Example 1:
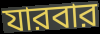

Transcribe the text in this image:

যারবার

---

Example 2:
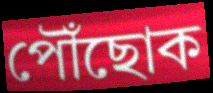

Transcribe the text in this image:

পৌঁছোক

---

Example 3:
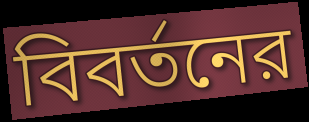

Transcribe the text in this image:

বিবর্তনের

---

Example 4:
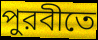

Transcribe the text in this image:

পুরবীতে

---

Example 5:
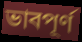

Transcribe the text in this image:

ভাবপূর্ণ